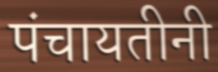
पंचायतीनी